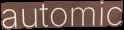
automic